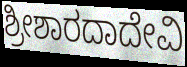
ಶ್ರೀಶಾರದಾದೇವಿ